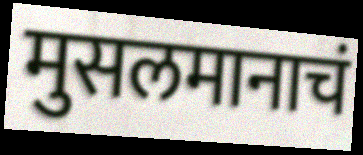
मुसलमानाचं